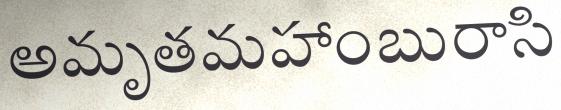
అమృతమహాంబురాసి